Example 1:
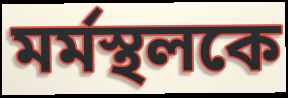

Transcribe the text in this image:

মর্মস্থলকে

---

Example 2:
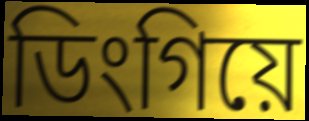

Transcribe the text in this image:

ডিংগিয়ে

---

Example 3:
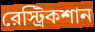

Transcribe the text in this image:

রেস্ট্রিকশান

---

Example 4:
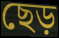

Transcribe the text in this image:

ছেড়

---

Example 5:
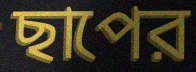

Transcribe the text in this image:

ছাপের